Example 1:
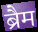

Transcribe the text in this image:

ब्रैम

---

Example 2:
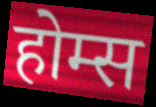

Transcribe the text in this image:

होम्स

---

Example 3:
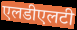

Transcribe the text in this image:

एलडीएलटी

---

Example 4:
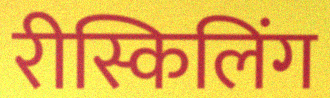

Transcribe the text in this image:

रीस्किलिंग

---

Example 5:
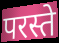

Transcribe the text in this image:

परस्ते